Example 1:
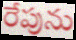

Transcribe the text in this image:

రేపును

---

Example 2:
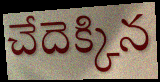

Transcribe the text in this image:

చేదెక్కిన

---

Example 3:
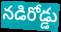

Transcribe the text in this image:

నడిరోడ్డు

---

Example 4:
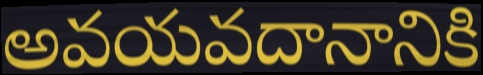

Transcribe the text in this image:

అవయవదానానికి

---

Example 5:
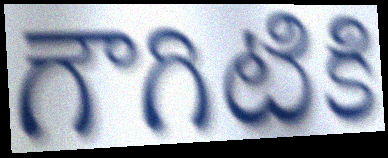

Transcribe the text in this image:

గౌగిటికి